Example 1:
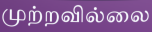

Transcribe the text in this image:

முற்றவில்லை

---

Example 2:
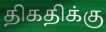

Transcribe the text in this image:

திகதிக்கு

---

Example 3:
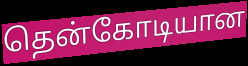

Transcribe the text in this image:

தென்கோடியான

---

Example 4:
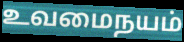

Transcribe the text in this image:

உவமைநயம்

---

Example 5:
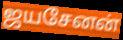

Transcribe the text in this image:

ஜயசேனன்